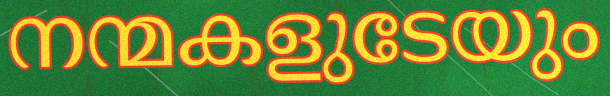
നന്മകളുടേയും